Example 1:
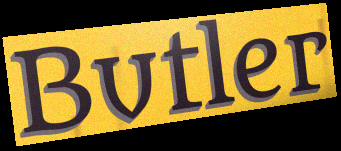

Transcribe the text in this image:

Butler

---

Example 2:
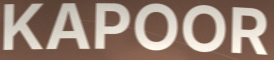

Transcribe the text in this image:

KAPOOR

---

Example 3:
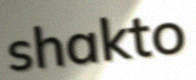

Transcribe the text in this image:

shakto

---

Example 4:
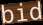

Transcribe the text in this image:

bid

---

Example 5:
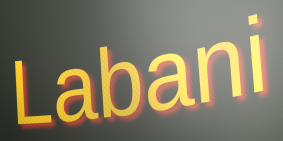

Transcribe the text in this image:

Labani